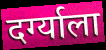
दर्ग्याला